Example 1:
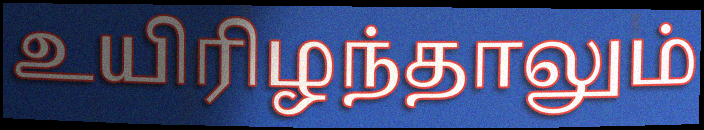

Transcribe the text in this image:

உயிரிழந்தாலும்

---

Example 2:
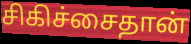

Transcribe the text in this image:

சிகிச்சைதான்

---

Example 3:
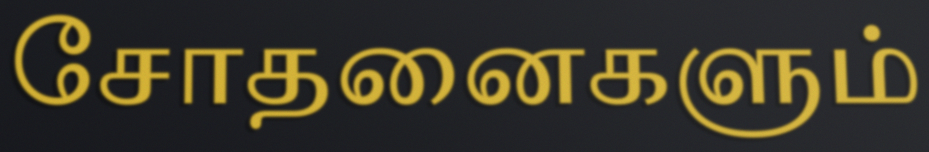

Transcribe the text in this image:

சோதனைகளும்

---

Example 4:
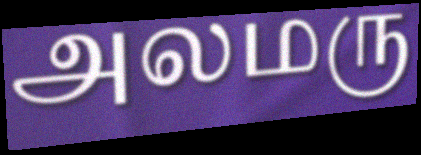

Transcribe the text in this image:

அலமரு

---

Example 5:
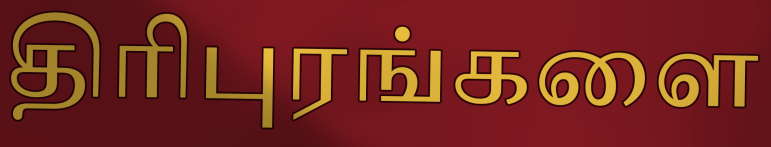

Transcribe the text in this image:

திரிபுரங்களை